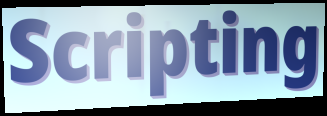
Scripting